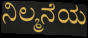
ನಿಲ್ಮನೆಯ